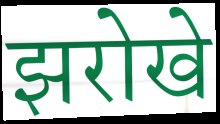
झरोखे